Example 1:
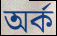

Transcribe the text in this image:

অর্ক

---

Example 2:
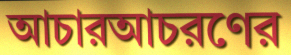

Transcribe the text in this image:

আচারআচরণের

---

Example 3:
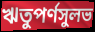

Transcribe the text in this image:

ঋতুপর্ণসুলভ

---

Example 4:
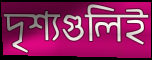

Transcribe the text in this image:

দৃশ্যগুলিই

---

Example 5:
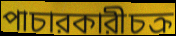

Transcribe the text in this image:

পাচারকারীচক্র